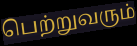
பெற்றுவரும்